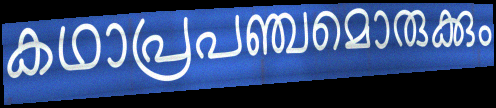
കഥാപ്രപഞ്ചമൊരുക്കും